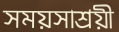
সময়সাশ্রয়ী